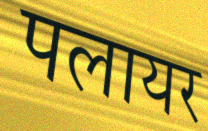
पलायर